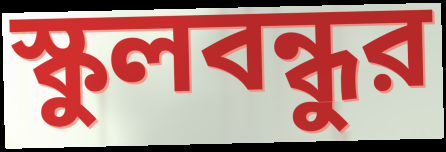
স্কুলবন্ধুর